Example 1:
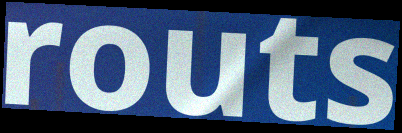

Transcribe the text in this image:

routs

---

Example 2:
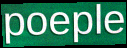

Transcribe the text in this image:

poeple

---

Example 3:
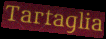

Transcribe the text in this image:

Tartaglia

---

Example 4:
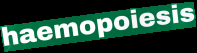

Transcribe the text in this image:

haemopoiesis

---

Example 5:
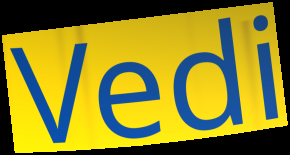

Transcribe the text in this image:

Vedi